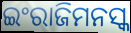
ଇଂରାଜିମନସ୍କ